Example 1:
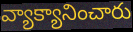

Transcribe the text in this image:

వ్యాక్యానించారు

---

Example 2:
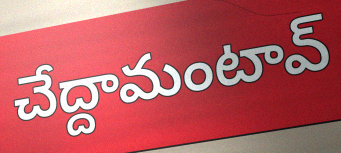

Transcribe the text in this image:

చేద్దామంటావ్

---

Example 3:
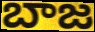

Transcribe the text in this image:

బాజ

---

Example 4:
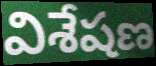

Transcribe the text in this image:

విశేషణ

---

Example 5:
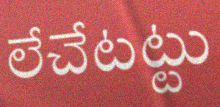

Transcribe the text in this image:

లేచేటట్టు